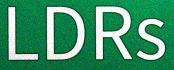
LDRs